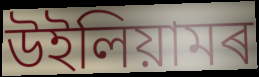
উইলিয়ামৰ